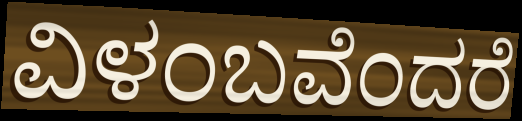
ವಿಳಂಬವೆಂದರೆ